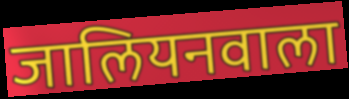
जालियनवाला